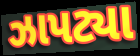
ઝાપટ્યા